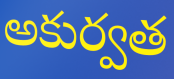
అకుర్వత